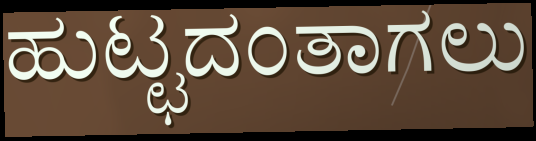
ಹುಟ್ಟದಂತಾಗಲು